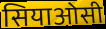
सियाओसी